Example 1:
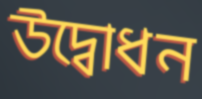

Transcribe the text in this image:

উদ্বোধন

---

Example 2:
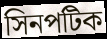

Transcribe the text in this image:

সিনপটিক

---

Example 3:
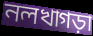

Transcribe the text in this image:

নলখাগড়া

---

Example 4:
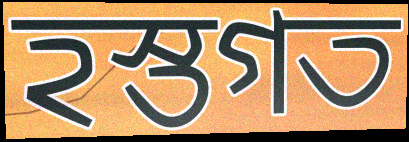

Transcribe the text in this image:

হস্তগত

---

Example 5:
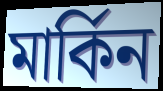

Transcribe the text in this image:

মার্কিন